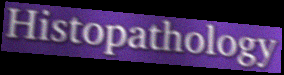
Histopathology